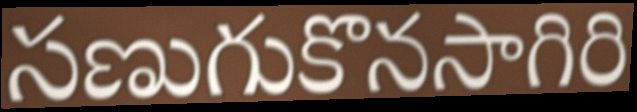
సణుగుకొనసాగిరి